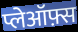
प्लेऑफ़्स